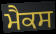
ਮੈਕਸ